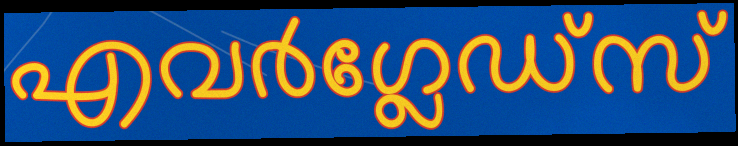
എവർഗ്ലേഡ്സ്